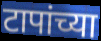
टापांच्या